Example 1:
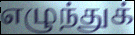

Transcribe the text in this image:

எழுந்துக்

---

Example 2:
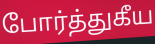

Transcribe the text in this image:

போர்த்துகீய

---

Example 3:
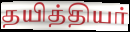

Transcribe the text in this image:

தயித்தியர்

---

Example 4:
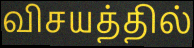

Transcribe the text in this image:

விசயத்தில்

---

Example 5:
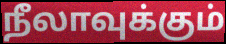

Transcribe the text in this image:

நீலாவுக்கும்